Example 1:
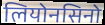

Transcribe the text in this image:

लियोनसिनो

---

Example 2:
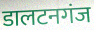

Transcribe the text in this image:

डालटनगंज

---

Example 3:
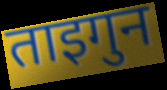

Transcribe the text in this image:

ताइगुन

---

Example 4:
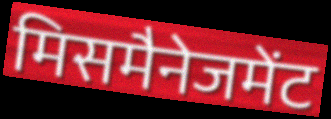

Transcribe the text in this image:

मिसमैनेजमेंट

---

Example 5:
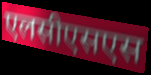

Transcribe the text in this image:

एलसीएसएस